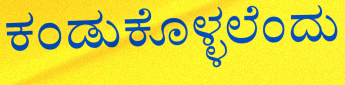
ಕಂಡುಕೊಳ್ಳಲೆಂದು